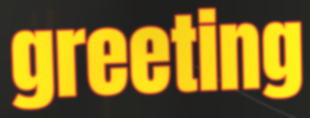
greeting